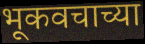
भूकवचाच्या